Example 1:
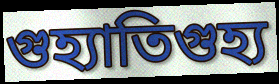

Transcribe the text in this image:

গুহ্যাতিগুহ্য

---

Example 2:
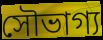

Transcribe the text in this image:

সৌভাগ্য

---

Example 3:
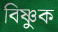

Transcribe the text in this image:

বিষ্ণুক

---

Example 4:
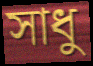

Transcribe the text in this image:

সাধু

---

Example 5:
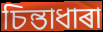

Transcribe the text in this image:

চিন্তাধাৰা